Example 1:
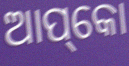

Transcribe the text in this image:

ଆପ୍‌କୋ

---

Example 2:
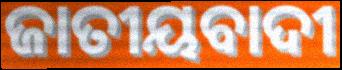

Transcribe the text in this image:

ଜାତୀୟବାଦୀ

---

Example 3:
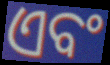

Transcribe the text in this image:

ଏବଂ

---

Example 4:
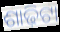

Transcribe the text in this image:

ଶାଢ଼ିଟା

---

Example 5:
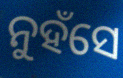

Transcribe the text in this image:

ନୁହଁସେ